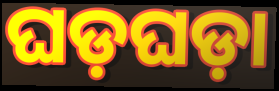
ଘଡ଼ଘଡ଼ା